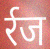
र्रज